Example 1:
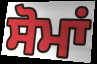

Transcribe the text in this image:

ਸੋਮਾਂ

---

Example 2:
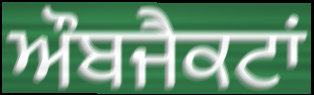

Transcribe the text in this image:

ਔਬਜੈਕਟਾਂ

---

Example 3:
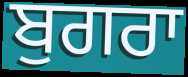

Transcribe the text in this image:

ਬੁਗਰਾ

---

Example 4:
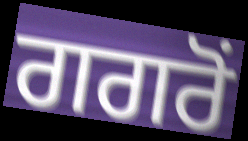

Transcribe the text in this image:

ਗਗਰੋਂ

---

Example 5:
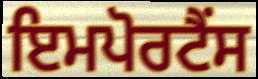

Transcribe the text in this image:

ਇਮਪੋਰਟੈਂਸ